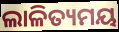
ଲାଳିତ୍ୟମୟ